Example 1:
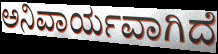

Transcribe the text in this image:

ಅನಿವಾರ್ಯವಾಗಿದೆ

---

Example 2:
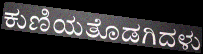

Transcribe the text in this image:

ಕುಣಿಯತೊಡಗಿದಳು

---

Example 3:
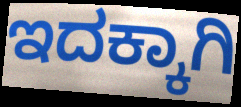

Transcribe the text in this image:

ಇದಕ್ಕಾಗಿ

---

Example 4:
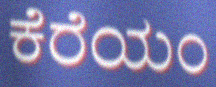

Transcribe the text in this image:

ಕೆರೆಯಂ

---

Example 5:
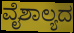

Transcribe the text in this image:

ವೈಶಾಲ್ಯದ